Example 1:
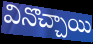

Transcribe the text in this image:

వినొచ్చాయి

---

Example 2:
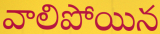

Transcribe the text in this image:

వాలిపోయిన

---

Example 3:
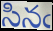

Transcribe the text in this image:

సినఁ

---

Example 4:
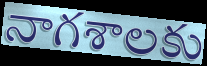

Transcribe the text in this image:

నాగశాలకు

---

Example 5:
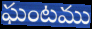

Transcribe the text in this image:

ఘంటము